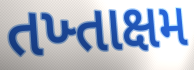
તખ્તાક્ષમ